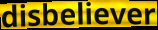
disbeliever